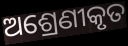
ଅଶ୍ରେଣୀକୃତ